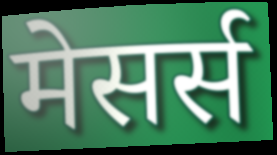
मेसर्स